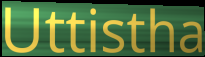
Uttistha